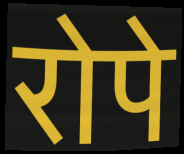
रोपे